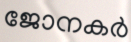
ജോനകർ